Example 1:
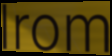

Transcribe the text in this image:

Irom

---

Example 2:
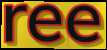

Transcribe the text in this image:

ree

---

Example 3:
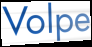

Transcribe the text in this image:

Volpe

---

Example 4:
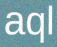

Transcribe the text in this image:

aql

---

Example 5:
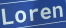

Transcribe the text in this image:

Loren